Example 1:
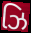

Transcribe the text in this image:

ઝિ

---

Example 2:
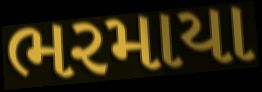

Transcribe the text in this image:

ભરમાયા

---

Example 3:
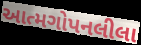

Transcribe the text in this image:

આત્મગોપનલીલા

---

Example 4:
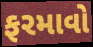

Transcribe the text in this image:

ફરમાવો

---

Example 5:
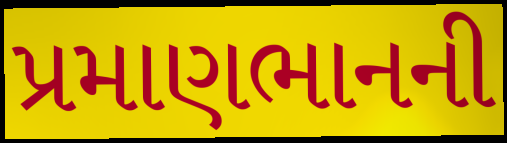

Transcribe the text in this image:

પ્રમાણભાનની